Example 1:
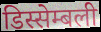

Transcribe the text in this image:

डिस्सेम्बली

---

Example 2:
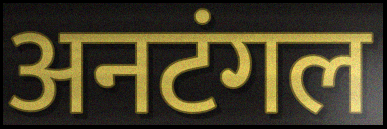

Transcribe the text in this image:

अनटंगल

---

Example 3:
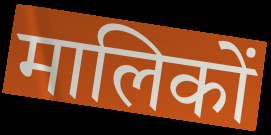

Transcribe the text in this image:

मालिकों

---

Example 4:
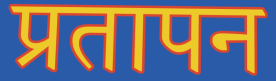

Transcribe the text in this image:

प्रतापन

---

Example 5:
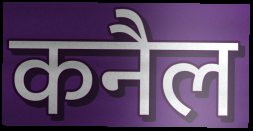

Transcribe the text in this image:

कनैल